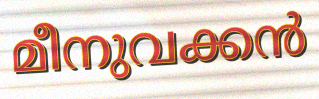
മീനുവക്കൻ